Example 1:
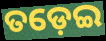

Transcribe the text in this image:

ତଡ଼େଇ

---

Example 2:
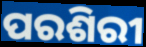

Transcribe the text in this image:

ପରଶିରୀ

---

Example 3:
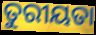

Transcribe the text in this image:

ତୁରୀୟତା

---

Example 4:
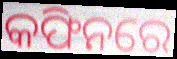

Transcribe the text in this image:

କଫିନରେ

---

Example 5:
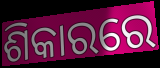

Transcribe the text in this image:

ଶିକାରରେ